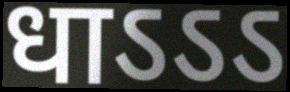
धाऽऽऽ